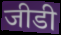
जीडी